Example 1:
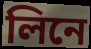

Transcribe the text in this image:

লিনে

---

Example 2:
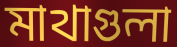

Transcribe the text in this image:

মাথাগুলা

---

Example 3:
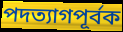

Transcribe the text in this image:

পদত্যাগপূর্বক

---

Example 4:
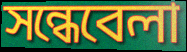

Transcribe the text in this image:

সন্ধেবেলা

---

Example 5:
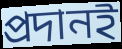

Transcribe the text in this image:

প্রদানই